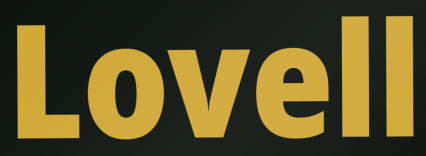
Lovell